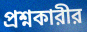
প্রশ্নকারীর